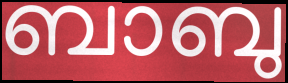
ബാബു